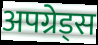
अपग्रेड्स